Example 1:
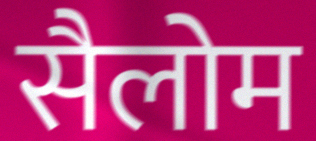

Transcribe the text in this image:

सैलोम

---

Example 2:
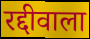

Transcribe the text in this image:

रद्दीवाला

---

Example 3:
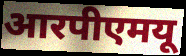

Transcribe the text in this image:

आरपीएमयू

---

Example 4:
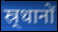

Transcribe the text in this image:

स्र्थानों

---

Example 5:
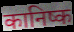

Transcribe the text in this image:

कानिष्क